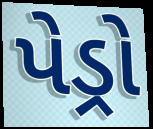
પેડ્રો